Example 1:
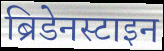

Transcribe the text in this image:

ब्रिडेनस्टाइन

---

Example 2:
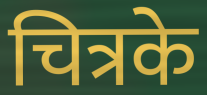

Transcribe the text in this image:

चित्रके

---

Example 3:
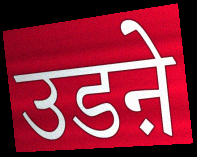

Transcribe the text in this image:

उडऩे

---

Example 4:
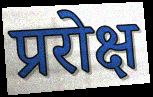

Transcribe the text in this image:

प्ररोक्ष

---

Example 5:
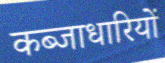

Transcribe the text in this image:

कब्जाधारियों